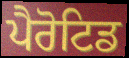
ਪੈਰੋਟਿਡ